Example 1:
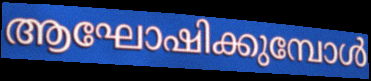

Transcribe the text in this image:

ആഘോഷിക്കുമ്പോൾ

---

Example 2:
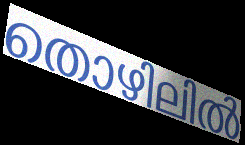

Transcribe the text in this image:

തൊഴിലിൽ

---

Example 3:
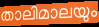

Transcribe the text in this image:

താലിമാലയും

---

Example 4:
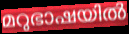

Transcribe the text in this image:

മറുഭാഷയിൽ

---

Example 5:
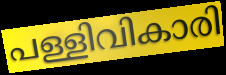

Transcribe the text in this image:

പള്ളിവികാരി